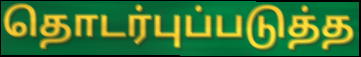
தொடர்புப்படுத்த